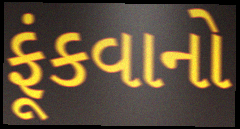
ફૂંકવાનો